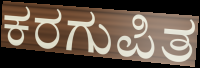
ಕರಗುಪಿತ